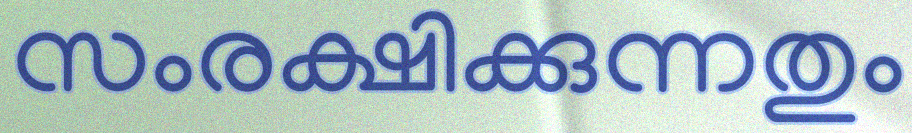
സംരക്ഷിക്കുന്നതും